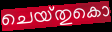
ചെയ്‌തുകൊ